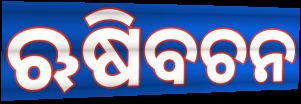
ଋଷିବଚନ